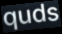
quds